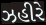
ઝહીરે